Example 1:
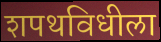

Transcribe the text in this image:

शपथविधीला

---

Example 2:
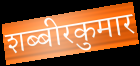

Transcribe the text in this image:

शब्बीरकुमार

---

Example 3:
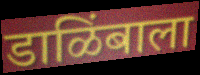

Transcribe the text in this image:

डाळिंबाला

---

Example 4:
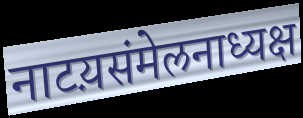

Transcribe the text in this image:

नाटय़संमेलनाध्यक्ष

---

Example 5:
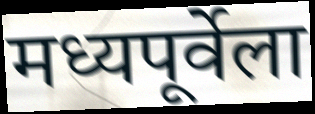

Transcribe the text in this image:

मध्यपूर्वेला